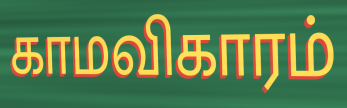
காமவிகாரம்